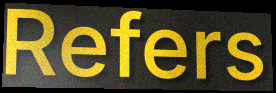
Refers